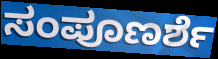
ಸಂಪೂಣರ್ಶೆ